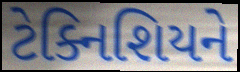
ટેક્નિશિયને